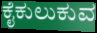
ಕೈಕುಲುಕುವ